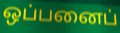
ஒப்பனைப்